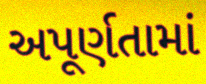
અપૂર્ણતામાં